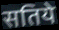
सतिये